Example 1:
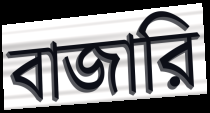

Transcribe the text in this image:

বাজারি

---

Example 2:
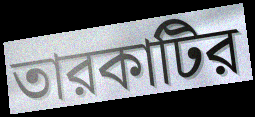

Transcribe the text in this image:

তারকাটির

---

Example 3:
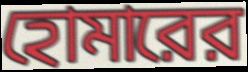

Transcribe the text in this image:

হোমারের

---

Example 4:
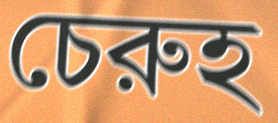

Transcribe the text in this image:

চেরুহ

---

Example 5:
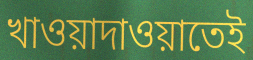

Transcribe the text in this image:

খাওয়াদাওয়াতেই